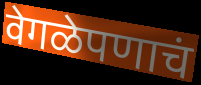
वेगळेपणाचं